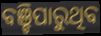
ବଞ୍ଚିପାରୁଥିବ